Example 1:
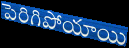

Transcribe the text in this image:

పెరిగిపోయాయి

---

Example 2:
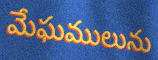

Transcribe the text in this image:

మేఘములును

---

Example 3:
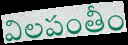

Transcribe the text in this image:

విలపంతీం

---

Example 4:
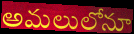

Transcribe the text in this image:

అమలులోనూ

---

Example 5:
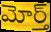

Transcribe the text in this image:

మోర్త్